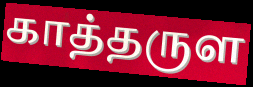
காத்தருள